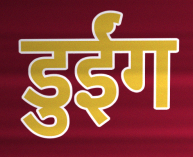
डुईंग